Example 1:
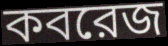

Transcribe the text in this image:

কবরেজ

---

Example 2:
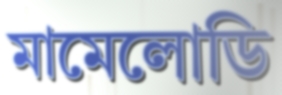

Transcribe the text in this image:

মামেলোডি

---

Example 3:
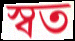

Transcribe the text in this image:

স্বত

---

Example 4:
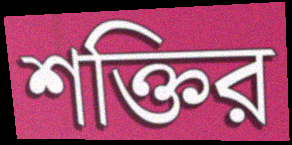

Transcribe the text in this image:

শক্তির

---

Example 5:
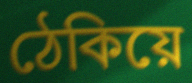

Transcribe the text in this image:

ঠেকিয়ে